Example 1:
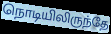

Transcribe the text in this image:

நொடியிலிருந்தே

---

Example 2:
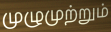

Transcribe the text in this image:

முழுமுற்றும்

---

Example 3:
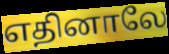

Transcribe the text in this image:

எதினாலே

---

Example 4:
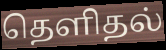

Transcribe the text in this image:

தெளிதல்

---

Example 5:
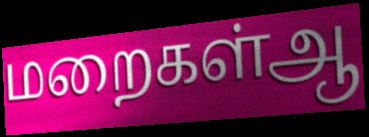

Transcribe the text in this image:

மறைகள்ஆ